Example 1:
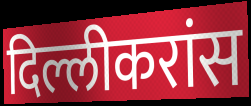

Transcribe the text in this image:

दिल्लीकरांस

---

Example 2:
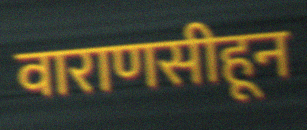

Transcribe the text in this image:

वाराणसीहून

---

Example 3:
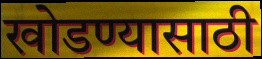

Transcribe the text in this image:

खोडण्यासाठी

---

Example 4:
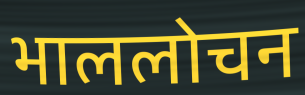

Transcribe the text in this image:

भाललोचन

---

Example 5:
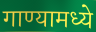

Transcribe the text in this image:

गाण्यामध्ये